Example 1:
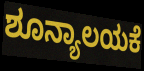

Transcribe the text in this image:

ಶೂನ್ಯಾಲಯಕೆ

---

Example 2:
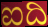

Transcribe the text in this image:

ಐದಿ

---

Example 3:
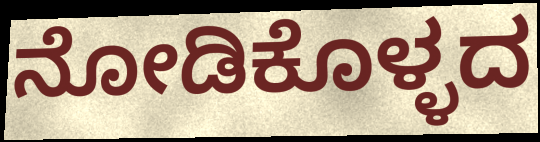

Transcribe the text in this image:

ನೋಡಿಕೊಳ್ಳದ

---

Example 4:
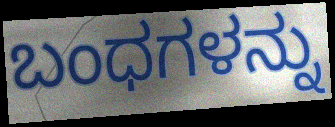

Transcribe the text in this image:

ಬಂಧಗಳನ್ನು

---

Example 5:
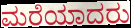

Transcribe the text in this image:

ಮರೆಯಾದರು